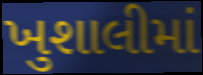
ખુશાલીમાં